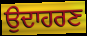
ਉਦਾਹਰਣ